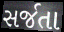
સર્જતા